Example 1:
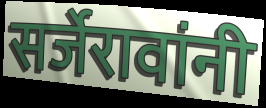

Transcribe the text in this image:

सर्जेरावांनी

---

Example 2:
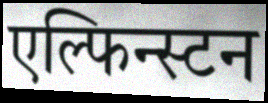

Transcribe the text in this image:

एल्फिन्स्टन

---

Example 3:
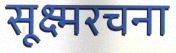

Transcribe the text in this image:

सूक्ष्मरचना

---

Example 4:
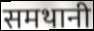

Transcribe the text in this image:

समथानी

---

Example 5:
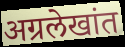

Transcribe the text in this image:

अग्रलेखांत